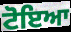
ਟੋਇਆ